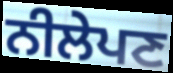
ਨੀਲੇਪਣ